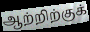
ஆற்றிற்குக்